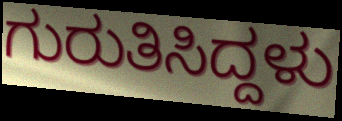
ಗುರುತಿಸಿದ್ದಳು